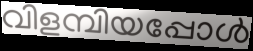
വിളമ്പിയപ്പോൾ